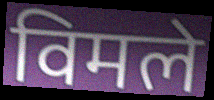
विमले